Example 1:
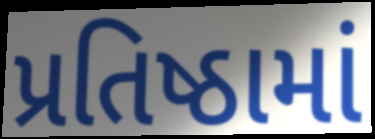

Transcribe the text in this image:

પ્રતિષ્ઠામાં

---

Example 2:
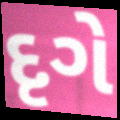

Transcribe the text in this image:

દૃગે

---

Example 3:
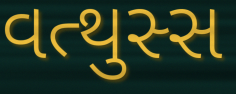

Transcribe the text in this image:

વત્થુસ્સ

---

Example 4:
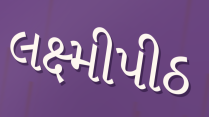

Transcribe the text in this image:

લક્ષ્મીપીઠ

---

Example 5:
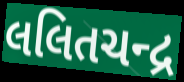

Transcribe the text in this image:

લલિતચન્દ્ર